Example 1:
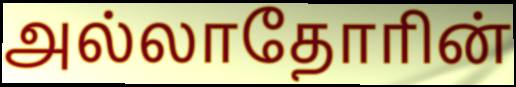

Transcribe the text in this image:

அல்லாதோரின்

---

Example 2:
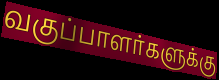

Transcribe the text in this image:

வகுப்பாளர்களுக்கு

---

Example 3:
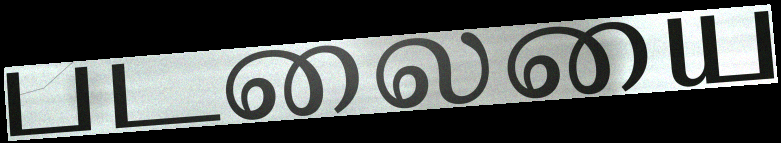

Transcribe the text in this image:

படலையை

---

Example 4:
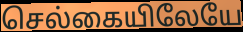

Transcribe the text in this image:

செல்கையிலேயே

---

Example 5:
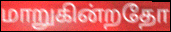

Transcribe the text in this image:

மாறுகின்றதோ